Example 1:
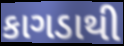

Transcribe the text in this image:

કાગડાથી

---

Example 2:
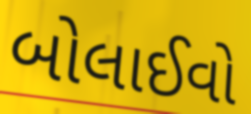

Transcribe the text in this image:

બોલાઈવો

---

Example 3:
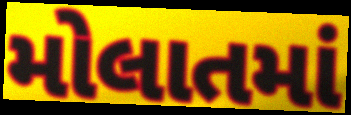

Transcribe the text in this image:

મોલાતમાં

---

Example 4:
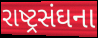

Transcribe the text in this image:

રાષ્ટ્રસંઘના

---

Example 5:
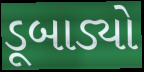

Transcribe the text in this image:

ડૂબાડ્યો